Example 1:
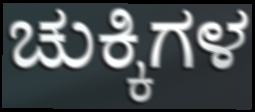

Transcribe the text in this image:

ಚುಕ್ಕಿಗಳ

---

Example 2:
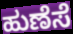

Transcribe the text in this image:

ಹುಣೆಸೆ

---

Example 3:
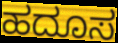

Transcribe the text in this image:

ಹದೂಸ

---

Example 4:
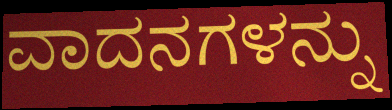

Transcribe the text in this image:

ವಾದನಗಳನ್ನು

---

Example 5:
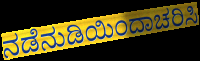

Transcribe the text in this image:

ನಡೆನುಡಿಯಿಂದಾಚರಿಸಿ